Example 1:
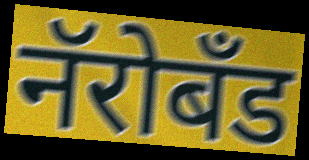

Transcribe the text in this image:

नॅरोबँड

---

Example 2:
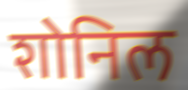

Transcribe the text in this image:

शोनिल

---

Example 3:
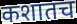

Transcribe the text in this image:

कशातच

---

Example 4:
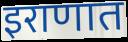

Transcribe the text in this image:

इराणात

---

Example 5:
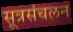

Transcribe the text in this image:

सूत्रसंचलन